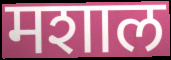
मशाल